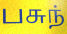
பசுந்